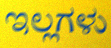
ಇಲ್ಲಗಳು